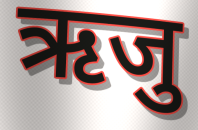
ऋजु